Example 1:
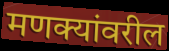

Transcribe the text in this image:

मणक्यांवरील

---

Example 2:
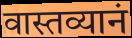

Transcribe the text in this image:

वास्तव्यानं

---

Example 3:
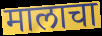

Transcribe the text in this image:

मालाचा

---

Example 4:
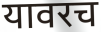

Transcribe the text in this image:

यावरच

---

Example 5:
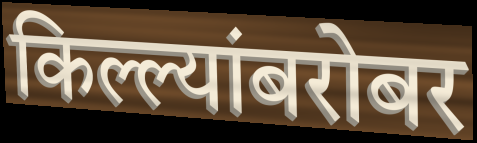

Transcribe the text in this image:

किल्ल्यांबरोबर